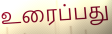
உரைப்பது